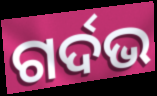
ଗର୍ଦଭ